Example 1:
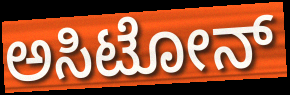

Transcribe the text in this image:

ಅಸಿಟೋನ್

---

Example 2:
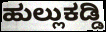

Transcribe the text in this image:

ಹುಲ್ಲುಕಡ್ಡಿ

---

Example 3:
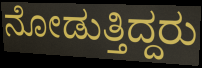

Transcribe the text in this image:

ನೋಡುತ್ತಿದ್ದರು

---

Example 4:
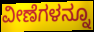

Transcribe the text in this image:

ವೀಣೆಗಳನ್ನೂ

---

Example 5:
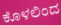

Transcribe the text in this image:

ಕೊಳಲಿಂದ